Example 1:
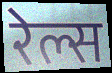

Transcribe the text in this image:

रेल्स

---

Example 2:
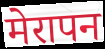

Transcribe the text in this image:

मेरापन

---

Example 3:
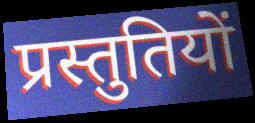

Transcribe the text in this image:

प्रस्तुतियों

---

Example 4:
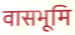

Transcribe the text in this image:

वासभूमि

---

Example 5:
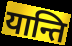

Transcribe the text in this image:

यान्ति